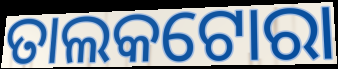
ତାଲକଟୋରା